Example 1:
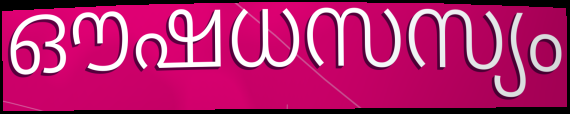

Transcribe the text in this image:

ഔഷധസസ്യം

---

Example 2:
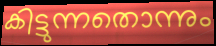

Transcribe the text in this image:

കിട്ടുന്നതൊന്നും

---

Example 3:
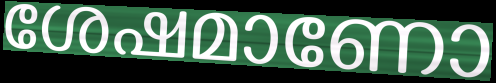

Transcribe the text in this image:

ശേഷമാണോ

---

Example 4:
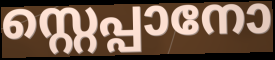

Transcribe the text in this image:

സ്റ്റെപ്പാനോ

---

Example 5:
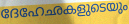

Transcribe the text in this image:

ദേഹേഛകളുടെയും